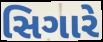
સિગારે